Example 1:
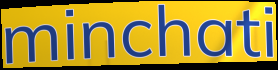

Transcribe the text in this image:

minchati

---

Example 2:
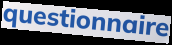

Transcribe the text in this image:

questionnaire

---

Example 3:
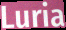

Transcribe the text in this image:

Luria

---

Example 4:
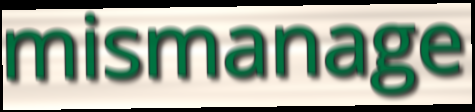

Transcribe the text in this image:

mismanage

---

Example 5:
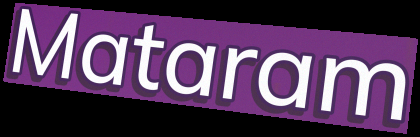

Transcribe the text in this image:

Mataram